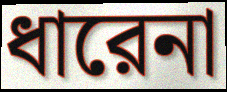
ধারেনা